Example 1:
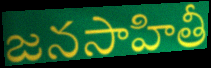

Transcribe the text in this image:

జనసాహితీ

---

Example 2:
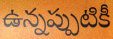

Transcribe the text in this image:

ఉన్నప్పుటికీ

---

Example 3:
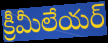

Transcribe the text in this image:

క్రీమీలేయర్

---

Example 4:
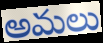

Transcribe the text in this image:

అమలు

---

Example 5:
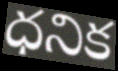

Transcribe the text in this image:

ధనిక